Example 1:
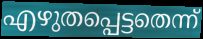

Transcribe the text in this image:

എഴുതപ്പെട്ടതെന്ന്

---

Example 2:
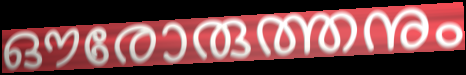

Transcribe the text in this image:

ഔരോരുത്തനും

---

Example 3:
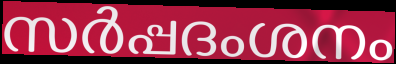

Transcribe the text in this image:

സർപ്പദംശനം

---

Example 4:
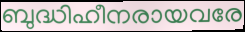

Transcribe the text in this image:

ബുദ്ധിഹീനരായവരേ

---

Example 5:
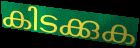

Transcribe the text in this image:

കിടക്കുക